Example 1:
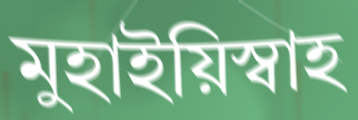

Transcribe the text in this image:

মুহাইয়িস্বাহ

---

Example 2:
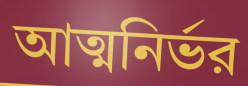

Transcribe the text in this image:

আত্মনির্ভর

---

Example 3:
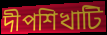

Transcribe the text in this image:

দীপশিখাটি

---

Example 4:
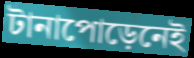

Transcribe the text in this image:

টানাপোড়েনেই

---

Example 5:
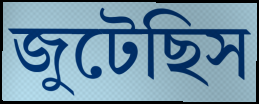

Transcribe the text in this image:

জুটেছিস